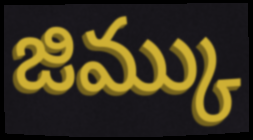
జిమ్కు